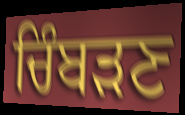
ਚਿੰਬੜਣ